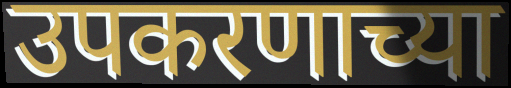
उपकरणाच्या